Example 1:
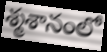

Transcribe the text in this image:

శ్మశానంలో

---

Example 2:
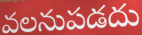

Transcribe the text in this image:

వలనుపడదు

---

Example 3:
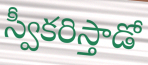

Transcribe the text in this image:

స్వీకరిస్తాడో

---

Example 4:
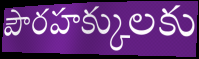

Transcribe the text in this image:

పౌరహక్కులకు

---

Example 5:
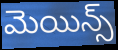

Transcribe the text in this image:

మెయిన్స్